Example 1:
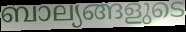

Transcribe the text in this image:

ബാല്യങ്ങളുടെ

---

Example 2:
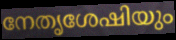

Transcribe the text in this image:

നേതൃശേഷിയും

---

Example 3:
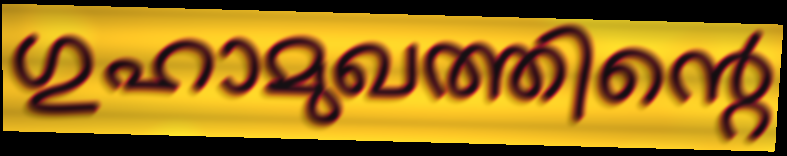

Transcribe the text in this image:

ഗുഹാമുഖത്തിന്റെ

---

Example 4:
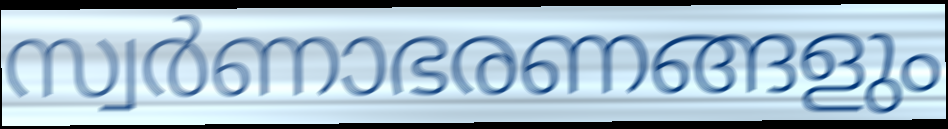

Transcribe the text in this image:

സ്വർണാഭരണങ്ങളും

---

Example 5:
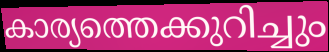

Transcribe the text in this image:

കാര്യത്തെക്കുറിച്ചും